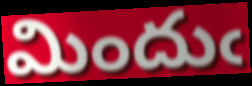
మిందుఁ